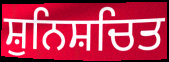
ਸ਼ੁਨਿਸ਼ਚਿਤ